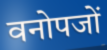
वनोपजों